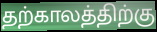
தற்காலத்திற்கு